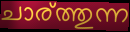
ചാര്ത്തുന്ന